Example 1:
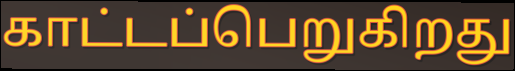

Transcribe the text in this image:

காட்டப்பெறுகிறது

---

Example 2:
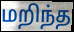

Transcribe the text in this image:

மறிந்த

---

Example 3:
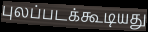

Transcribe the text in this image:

புலப்படக்கூடியது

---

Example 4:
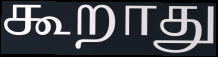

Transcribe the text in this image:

கூறாது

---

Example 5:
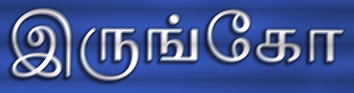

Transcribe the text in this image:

இருங்கோ